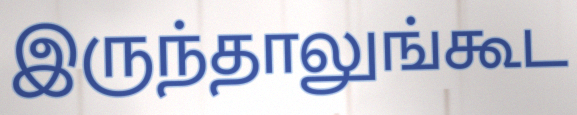
இருந்தாலுங்கூட